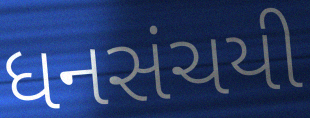
ધનસંચયી